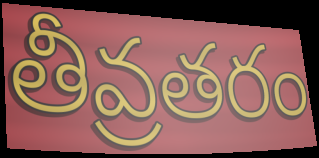
తీవ్రతరం